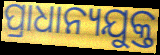
ପ୍ରାଧାନ୍ୟଯୁକ୍ତ